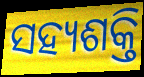
ସହ୍ୟଶକ୍ତି